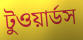
টুওয়ার্ডস